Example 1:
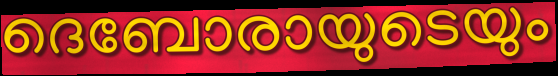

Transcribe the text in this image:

ദെബോരായുടെയും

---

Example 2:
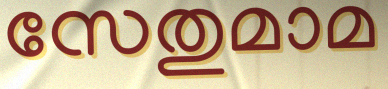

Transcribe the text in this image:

സേതുമാമ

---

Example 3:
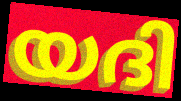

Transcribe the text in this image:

യദി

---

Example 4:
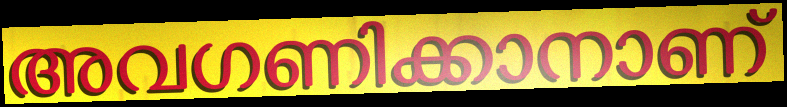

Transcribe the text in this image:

അവഗണിക്കാനാണ്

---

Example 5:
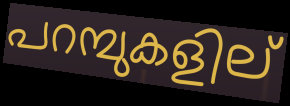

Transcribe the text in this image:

പറമ്പുകളില്